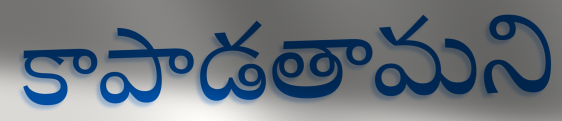
కాపాడతామని